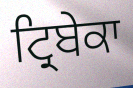
ਟ੍ਰਿਬੇਕਾ